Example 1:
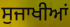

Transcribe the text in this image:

ਸੁਜਾਖੀਆਂ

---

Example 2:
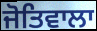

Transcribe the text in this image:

ਜੋਤਿਵਾਲਾ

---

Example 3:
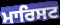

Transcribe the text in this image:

ਮਾਰਿਸਟ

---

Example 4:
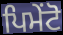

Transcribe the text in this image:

ਪਿਮੇਂਟੋ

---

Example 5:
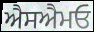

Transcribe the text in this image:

ਐਸਐਮਓ